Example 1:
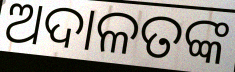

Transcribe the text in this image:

ଅଦାଳତଙ୍କ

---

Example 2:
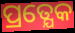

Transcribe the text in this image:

ପ୍ରତ୍ଯେକ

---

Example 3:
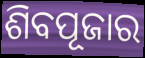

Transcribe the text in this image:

ଶିବପୂଜାର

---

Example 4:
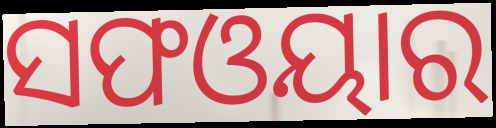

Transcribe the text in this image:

ସଫଓୟାର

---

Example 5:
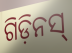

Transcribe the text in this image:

ଗିଡ଼ିନସ୍